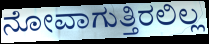
ನೋವಾಗುತ್ತಿರಲಿಲ್ಲ